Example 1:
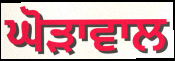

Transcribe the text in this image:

ਘੋੜਾਵਾਲ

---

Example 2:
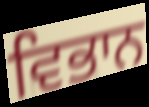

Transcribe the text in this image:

ਵਿਭਾਨ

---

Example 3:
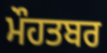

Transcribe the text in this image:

ਮੌਹਤਬਰ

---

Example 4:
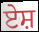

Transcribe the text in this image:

ਏਸ਼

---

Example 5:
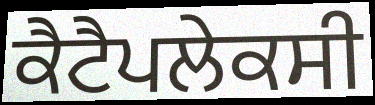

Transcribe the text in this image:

ਕੈਟੈਪਲੇਕਸੀ